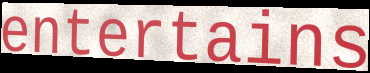
entertains